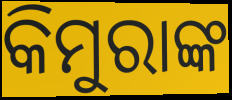
କିମୁରାଙ୍କ